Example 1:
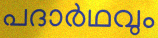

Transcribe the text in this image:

പദാർഥവും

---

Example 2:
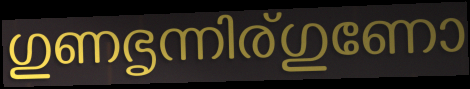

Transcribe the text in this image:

ഗുണഭൃന്നിര്ഗുണോ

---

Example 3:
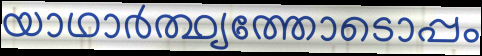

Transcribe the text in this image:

യാഥാർത്ഥ്യത്തോടൊപ്പം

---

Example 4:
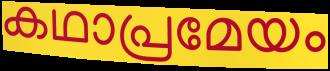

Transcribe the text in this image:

കഥാപ്രമേയം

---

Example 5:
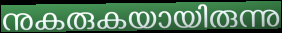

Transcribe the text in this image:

നുകരുകയായിരുന്നു